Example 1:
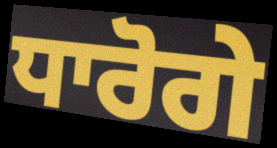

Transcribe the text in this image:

ਧਾਰੋਗੇ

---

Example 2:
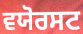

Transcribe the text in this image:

ਵਯੋਰਸਟ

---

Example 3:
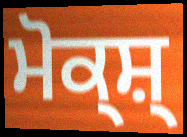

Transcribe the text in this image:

ਮੋਕ੍ਸ਼੍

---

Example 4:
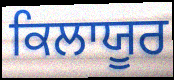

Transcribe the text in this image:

ਕਿਲਾਯੂਰ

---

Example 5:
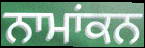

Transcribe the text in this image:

ਨਾਮਾਂਕਨ